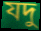
যদু